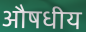
औषधीय